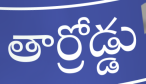
తార్రోడ్డు